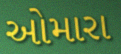
ઓમારા